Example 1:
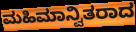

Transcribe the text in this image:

ಮಹಿಮಾನ್ವಿತರಾದ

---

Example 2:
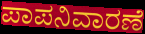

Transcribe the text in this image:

ಪಾಪನಿವಾರಣೆ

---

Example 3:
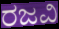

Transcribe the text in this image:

ರಜವಿ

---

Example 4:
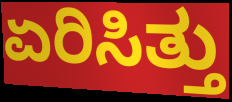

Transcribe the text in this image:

ಏರಿಸಿತ್ತು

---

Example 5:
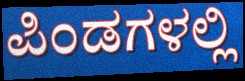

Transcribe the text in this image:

ಪಿಂಡಗಳಲ್ಲಿ